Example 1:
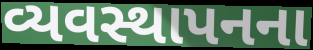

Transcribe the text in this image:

વ્યવસ્થાપનના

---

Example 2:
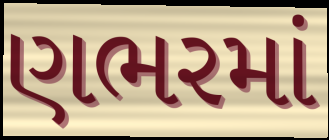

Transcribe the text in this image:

ણભરમાં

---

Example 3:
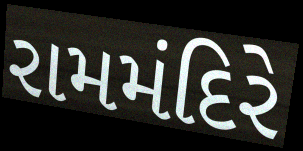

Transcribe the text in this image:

રામમંદિરે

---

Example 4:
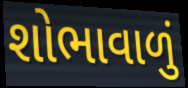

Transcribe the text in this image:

શોભાવાળું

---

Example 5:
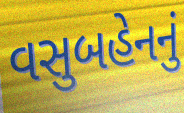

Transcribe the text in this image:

વસુબહેનનું